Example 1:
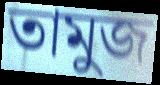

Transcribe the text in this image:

তামুজ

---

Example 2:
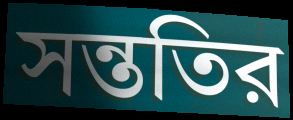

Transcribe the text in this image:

সন্ততির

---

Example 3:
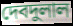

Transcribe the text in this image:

দেবদুলাল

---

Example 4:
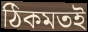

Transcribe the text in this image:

ঠিকমতই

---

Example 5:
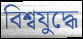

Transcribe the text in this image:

বিশ্বযুদ্ধে